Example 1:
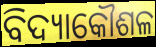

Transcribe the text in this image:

ବିଦ୍ୟାକୌଶଳ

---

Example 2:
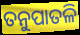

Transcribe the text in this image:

ତନୁପାତଳି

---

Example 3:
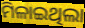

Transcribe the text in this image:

ମିଳାଇଥିଲା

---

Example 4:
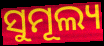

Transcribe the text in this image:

ସୁମୂଲ୍ୟ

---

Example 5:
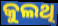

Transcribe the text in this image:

କୁଲଥି